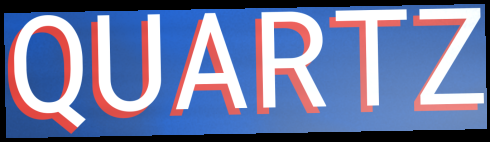
QUARTZ